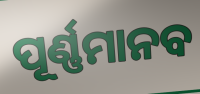
ପୂର୍ଣ୍ଣମାନବ